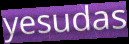
yesudas